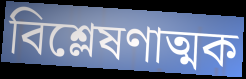
বিশ্লেষণাত্মক